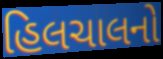
હિલચાલનો